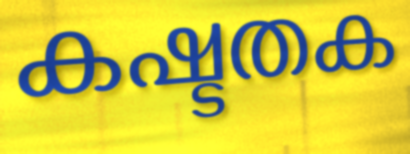
കഷ്ടതക